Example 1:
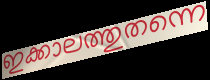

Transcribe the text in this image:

ഇക്കാലത്തുതന്നെ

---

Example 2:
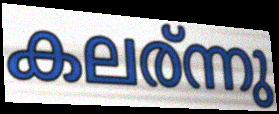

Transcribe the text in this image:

കലര്ന്നു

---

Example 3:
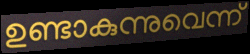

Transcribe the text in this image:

ഉണ്ടാകുന്നുവെന്ന്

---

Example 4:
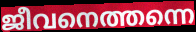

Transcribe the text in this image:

ജീവനെത്തന്നെ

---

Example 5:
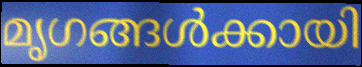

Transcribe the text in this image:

മൃഗങ്ങൾക്കായി